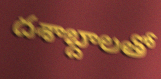
దశాబ్దాలతో